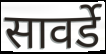
सावर्डे